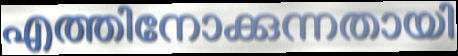
എത്തിനോക്കുന്നതായി